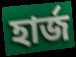
হার্জ